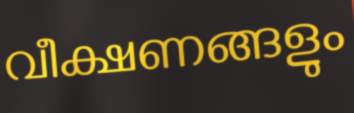
വീക്ഷണങ്ങളും